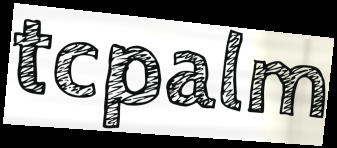
tcpalm